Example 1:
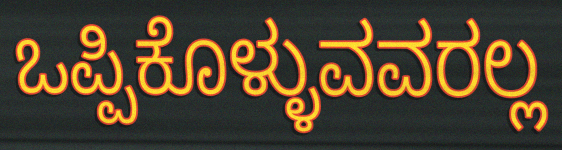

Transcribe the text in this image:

ಒಪ್ಪಿಕೊಳ್ಳುವವರಲ್ಲ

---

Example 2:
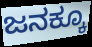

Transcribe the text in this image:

ಜನಕ್ಕೂ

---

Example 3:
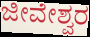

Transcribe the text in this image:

ಜೀವೇಶ್ವರ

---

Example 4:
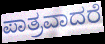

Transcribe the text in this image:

ಪಾತ್ರವಾದರೆ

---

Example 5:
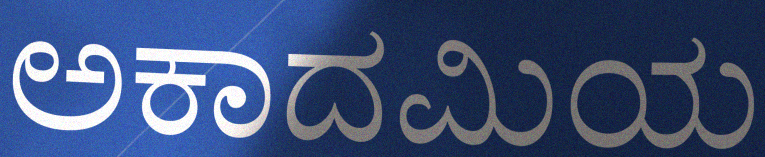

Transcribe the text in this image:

ಅಕಾದಮಿಯ